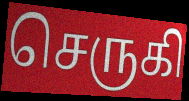
செருகி